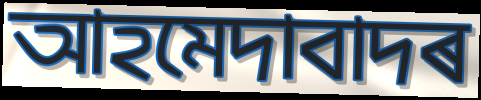
আহমেদাবাদৰ